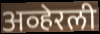
अव्हेरली